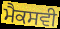
ਮੈਕਸਵੀ